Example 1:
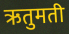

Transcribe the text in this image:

ऋतुमती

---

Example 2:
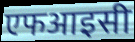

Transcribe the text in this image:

एफआइसी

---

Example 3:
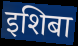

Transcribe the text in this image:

इशिबा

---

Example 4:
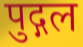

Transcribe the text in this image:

पुद्गल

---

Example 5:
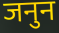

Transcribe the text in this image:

जनुन